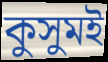
কুসুমই